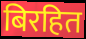
बिरहित